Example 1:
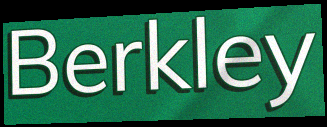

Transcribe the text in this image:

Berkley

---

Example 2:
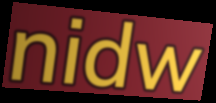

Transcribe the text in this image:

nidw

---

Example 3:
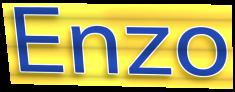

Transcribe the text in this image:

Enzo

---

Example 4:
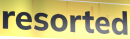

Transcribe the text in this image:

resorted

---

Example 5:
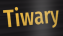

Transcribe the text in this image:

Tiwary